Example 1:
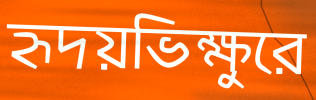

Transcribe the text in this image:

হৃদয়ভিক্ষুরে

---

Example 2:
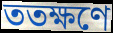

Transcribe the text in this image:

ততক্ষণে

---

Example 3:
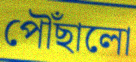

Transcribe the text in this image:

পৌঁছালো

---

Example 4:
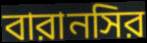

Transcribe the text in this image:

বারানসির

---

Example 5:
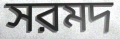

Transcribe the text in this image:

সরমদ